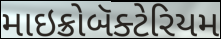
માઇક્રોબૅક્ટેરિયમ